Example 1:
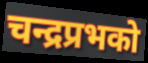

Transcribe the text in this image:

चन्द्रप्रभको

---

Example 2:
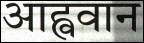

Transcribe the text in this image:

आह्ववान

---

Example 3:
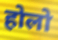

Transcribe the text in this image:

होलो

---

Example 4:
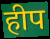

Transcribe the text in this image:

हीप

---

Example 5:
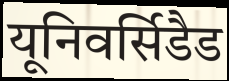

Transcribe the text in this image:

यूनिवर्सिडैड